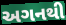
અગનથી